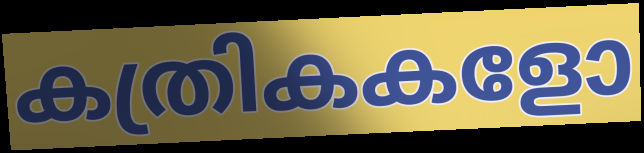
കത്രികകളോ